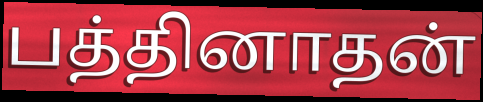
பத்தினாதன்